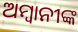
ଅମ୍ବାନୀଙ୍କ